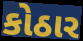
કોઠાર